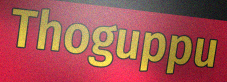
Thoguppu